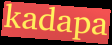
kadapa